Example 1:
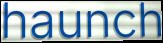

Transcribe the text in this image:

haunch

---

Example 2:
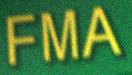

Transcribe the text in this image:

FMA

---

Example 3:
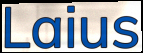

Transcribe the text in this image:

Laius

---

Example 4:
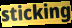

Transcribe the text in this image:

sticking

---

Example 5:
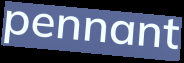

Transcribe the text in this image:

pennant